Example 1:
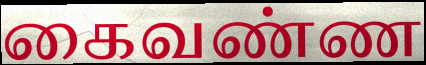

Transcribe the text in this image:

கைவண்ண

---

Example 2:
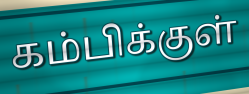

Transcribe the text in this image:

கம்பிக்குள்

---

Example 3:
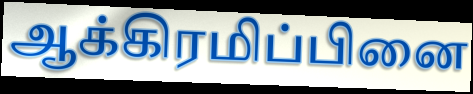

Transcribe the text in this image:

ஆக்கிரமிப்பினை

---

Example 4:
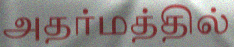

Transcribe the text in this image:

அதர்மத்தில்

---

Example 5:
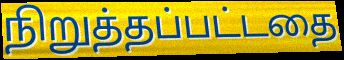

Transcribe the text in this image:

நிறுத்தப்பட்டதை